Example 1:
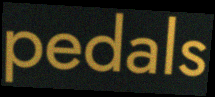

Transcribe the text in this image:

pedals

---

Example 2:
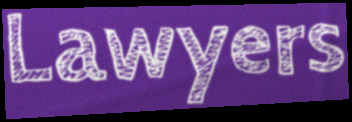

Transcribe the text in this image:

Lawyers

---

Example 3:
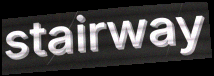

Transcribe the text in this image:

stairway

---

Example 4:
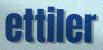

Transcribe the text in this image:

ettiler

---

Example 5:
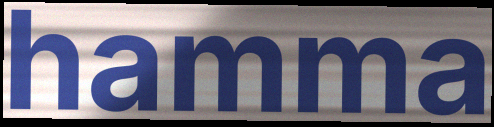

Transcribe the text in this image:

hamma